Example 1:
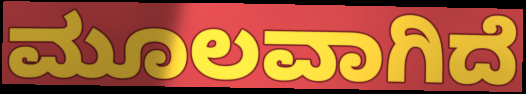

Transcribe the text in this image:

ಮೂಲವಾಗಿದೆ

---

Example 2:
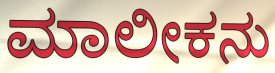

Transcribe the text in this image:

ಮಾಲೀಕನು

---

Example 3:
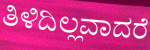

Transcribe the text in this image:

ತಿಳಿದಿಲ್ಲವಾದರೆ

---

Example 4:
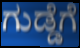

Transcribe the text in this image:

ಗುಡ್ಡೆಗೆ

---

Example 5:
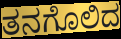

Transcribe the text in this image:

ತನಗೊಲಿದ